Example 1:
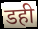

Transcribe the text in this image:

डही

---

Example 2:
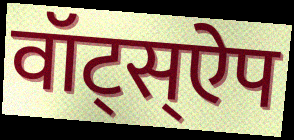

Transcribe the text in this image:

वॉट्स्ऐप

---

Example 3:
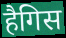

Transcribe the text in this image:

हैगिस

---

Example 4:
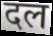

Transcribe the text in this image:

दल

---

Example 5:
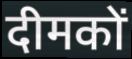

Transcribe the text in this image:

दीमकों